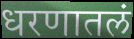
धरणातलं